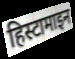
हिस्टामाइन